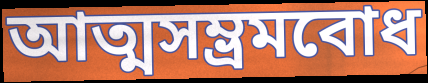
আত্মসম্ভ্রমবোধ